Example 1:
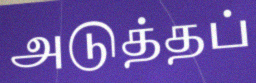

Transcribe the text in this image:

அடுத்தப்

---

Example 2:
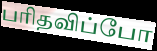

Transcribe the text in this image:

பரிதவிப்போ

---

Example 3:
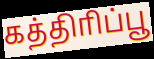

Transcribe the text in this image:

கத்திரிப்பூ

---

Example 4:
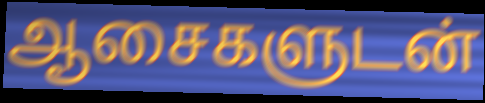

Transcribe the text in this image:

ஆசைகளுடன்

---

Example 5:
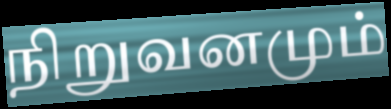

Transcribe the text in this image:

நிறுவனமும்